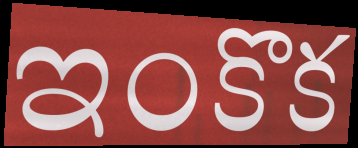
ఇంకొక